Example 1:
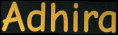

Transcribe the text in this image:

Adhira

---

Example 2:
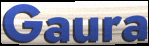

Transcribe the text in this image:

Gaura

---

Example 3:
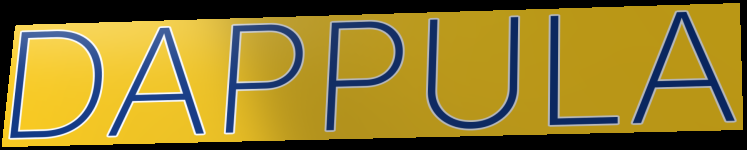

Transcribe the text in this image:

DAPPULA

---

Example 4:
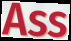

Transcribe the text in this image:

Ass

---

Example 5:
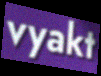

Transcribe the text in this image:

vyakt